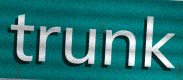
trunk